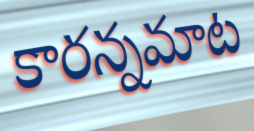
కారన్నమాట